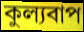
কুল্যবাপ